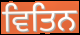
ਵਿਤਿਨ